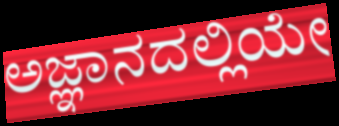
ಅಜ್ಞಾನದಲ್ಲಿಯೇ